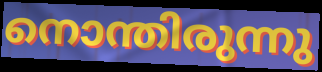
നൊന്തിരുന്നു